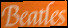
Beatles